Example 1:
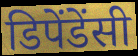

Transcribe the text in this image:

डिपेंडेंसी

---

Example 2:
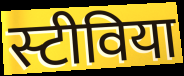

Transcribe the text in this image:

स्‍टीविया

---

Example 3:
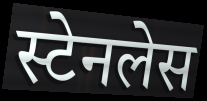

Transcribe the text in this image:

स्टेनलेस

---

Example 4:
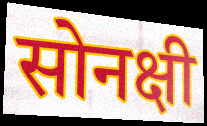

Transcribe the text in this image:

सोनक्षी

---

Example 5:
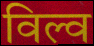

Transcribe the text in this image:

विल्व